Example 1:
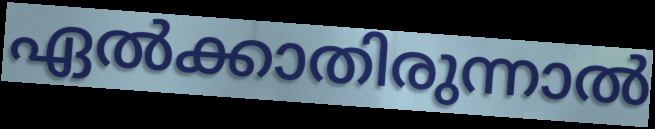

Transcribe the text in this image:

ഏൽക്കാതിരുന്നാൽ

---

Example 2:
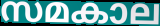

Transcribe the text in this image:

സമകാല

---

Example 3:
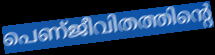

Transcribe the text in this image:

പെണ്ജീവിതത്തിന്റെ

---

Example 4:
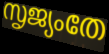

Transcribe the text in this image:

സൃജ്യംതേ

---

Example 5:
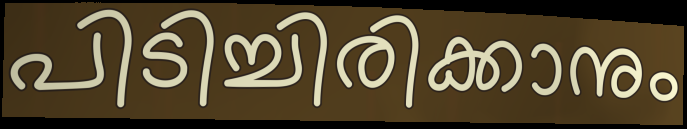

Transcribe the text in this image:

പിടിച്ചിരിക്കാനും